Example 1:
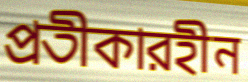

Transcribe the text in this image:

প্রতীকারহীন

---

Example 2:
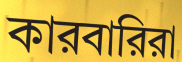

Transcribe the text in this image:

কারবারিরা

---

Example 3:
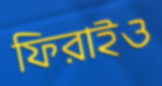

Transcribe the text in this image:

ফিরাইও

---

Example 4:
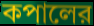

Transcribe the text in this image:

কপালের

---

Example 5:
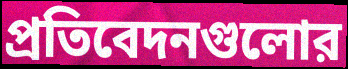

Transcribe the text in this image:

প্রতিবেদনগুলোর